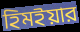
হিমইয়ার